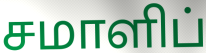
சமாளிப்